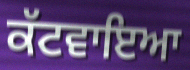
ਕੱਟਵਾਇਆ